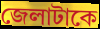
জেলাটাকে